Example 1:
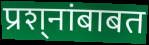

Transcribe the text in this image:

प्रश्नांबाबत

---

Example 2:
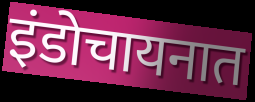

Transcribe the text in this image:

इंडोचायनात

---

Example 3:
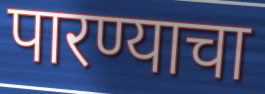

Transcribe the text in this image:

पारण्याचा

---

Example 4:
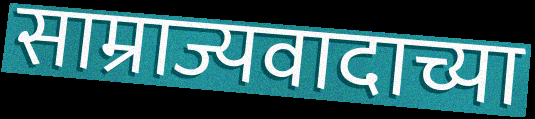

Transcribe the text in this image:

साम्राज्यवादाच्या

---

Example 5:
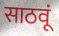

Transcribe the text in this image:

साठवूं